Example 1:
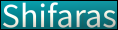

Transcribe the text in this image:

Shifaras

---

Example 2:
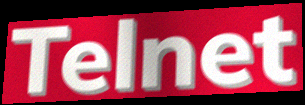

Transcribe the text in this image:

Telnet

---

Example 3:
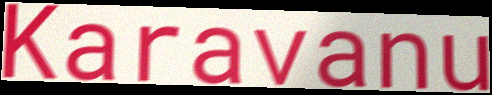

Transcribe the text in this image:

Karavanu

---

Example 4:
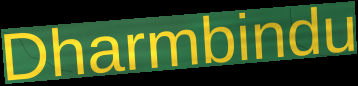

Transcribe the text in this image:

Dharmbindu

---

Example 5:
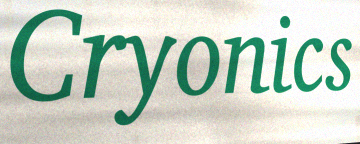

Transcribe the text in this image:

Cryonics